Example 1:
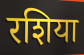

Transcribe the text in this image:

रशिया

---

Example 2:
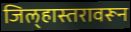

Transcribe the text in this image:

जिल्हास्तरावरून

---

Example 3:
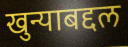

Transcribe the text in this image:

खुन्याबद्दल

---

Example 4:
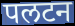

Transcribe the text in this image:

पलटन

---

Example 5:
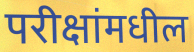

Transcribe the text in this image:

परीक्षांमधील